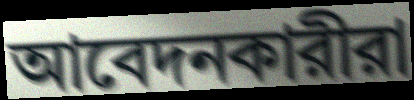
আবেদনকারীরা